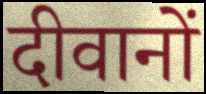
दीवानों